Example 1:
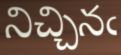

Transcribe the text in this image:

నిచ్చినఁ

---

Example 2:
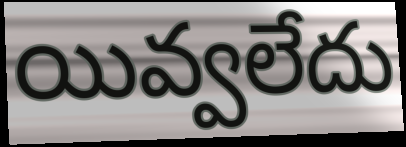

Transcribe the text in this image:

యివ్వలేదు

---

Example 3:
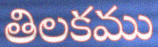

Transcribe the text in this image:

తిలకము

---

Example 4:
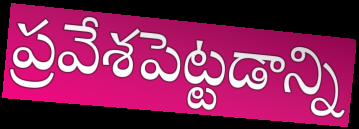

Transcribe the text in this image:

ప్రవేశపెట్టడాన్ని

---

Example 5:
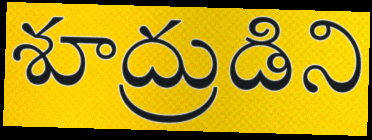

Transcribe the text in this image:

శూద్రుడిని